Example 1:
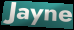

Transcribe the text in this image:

Jayne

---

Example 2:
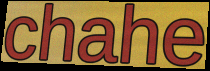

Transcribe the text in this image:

chahe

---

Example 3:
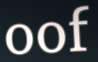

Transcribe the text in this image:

oof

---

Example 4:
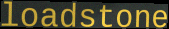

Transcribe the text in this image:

loadstone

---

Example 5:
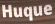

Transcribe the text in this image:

Huque